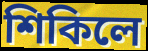
শিকিলে